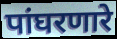
पांघरणारे